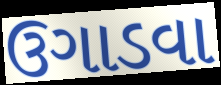
ઉગાડવા